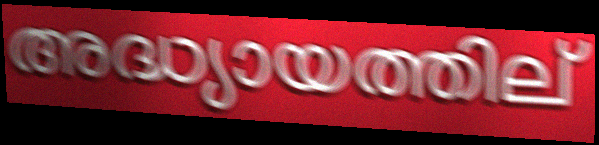
അദ്ധ്യായത്തില്